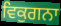
ਵਿਕੁਗਨਾ